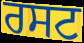
ਰਸਟ